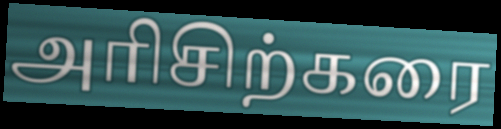
அரிசிற்கரை